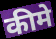
कीमे